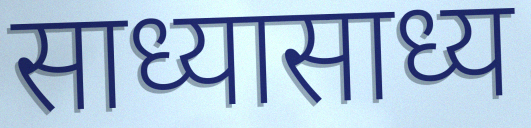
साध्यासाध्य